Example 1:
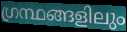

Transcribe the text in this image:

ഗ്രന്ഥങ്ങളിലും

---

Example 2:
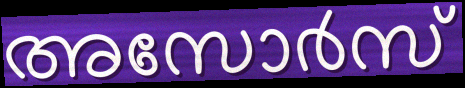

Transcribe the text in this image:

അസോർസ്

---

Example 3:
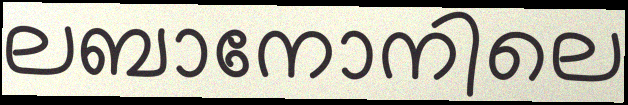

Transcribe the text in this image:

ലബാനോനിലെ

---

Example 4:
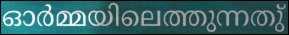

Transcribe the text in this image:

ഓർമ്മയിലെത്തുന്നതു്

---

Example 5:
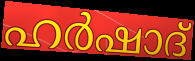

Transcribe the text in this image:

ഹർഷാദ്